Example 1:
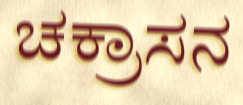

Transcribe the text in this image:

ಚಕ್ರಾಸನ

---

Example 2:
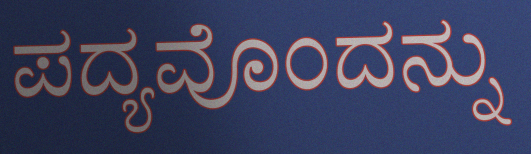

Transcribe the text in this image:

ಪದ್ಯವೊಂದನ್ನು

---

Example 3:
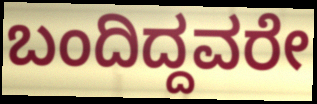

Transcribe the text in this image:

ಬಂದಿದ್ದವರೇ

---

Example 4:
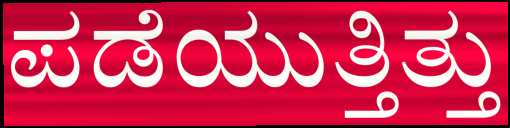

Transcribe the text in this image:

ಪಡೆಯುತ್ತಿತ್ತು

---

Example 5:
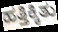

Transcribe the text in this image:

ಹತ್ತಿಕ್ಕಿತು